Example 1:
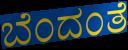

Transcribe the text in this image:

ಬೆಂದಂತೆ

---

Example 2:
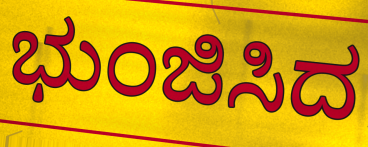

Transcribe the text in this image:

ಭುಂಜಿಸಿದ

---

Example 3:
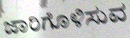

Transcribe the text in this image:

ಜಾರಿಗೊಳಿಸುವ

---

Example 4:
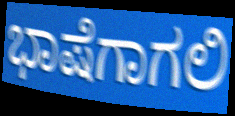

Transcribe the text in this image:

ಭಾಷೆಗಾಗಲಿ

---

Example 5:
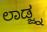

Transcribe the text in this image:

ಲಾಡ್ಜ್ನ